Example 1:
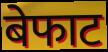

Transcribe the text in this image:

बेफाट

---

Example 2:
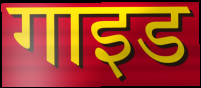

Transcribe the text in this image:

गाइड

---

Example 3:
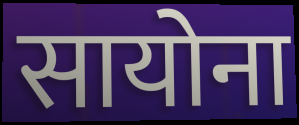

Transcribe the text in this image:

सायोना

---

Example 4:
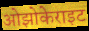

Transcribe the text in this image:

ओझोकेराइट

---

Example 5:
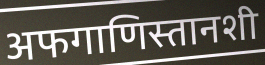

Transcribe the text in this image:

अफगाणिस्तानशी